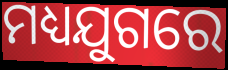
ମଧ୍ୟଯୁଗରେ